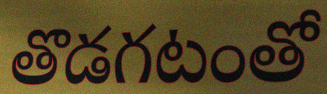
తొడగటంతో